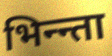
भिन्न्ता